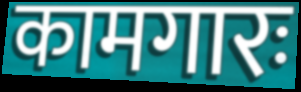
कामगारः